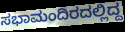
ಸಭಾಮಂದಿರದಲ್ಲಿದ್ದ